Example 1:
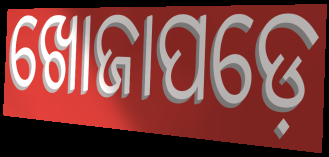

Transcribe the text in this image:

ଖୋଜାପଡ଼େ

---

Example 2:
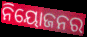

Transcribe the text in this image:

ନିୟୋଜନର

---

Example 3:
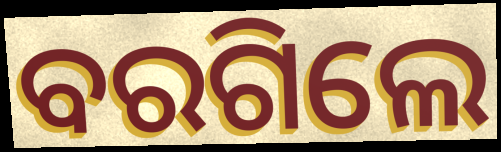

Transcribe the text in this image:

ବରଗିଲେ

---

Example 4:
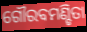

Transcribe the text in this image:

ଗୌରବମଣ୍ଡିତା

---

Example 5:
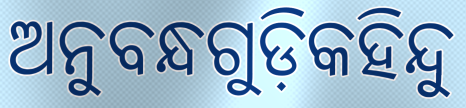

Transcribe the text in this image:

ଅନୁବନ୍ଧଗୁଡ଼ିକହିନ୍ଦୁ